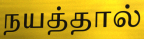
நயத்தால்